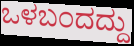
ಒಳಬಂದದ್ದು